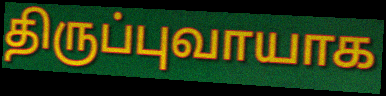
திருப்புவாயாக